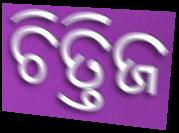
ଚିତ୍ତିଜ